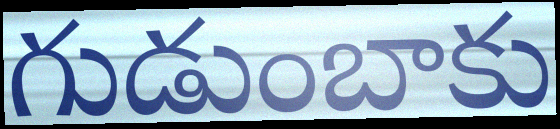
గుడుంబాకు